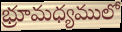
భ్రూమధ్యములో